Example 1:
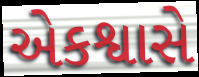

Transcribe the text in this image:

એકશ્વાસે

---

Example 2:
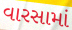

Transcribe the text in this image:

વારસામાં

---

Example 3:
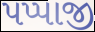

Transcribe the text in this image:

પપ્પાજી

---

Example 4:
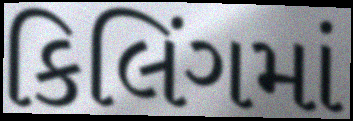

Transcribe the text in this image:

કિલિંગમાં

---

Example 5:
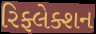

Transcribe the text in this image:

રિફ્લેક્શન